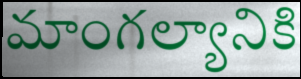
మాంగల్యానికి